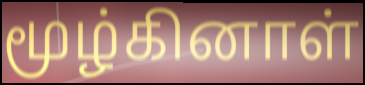
மூழ்கினாள்